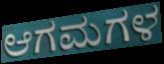
ಆಗಮಗಳ